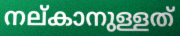
നല്കാനുള്ളത്